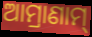
ଆମ୍ରାଣାମ୍